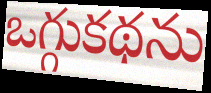
ఒగ్గుకథను